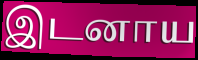
இடனாய